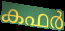
കഫർ